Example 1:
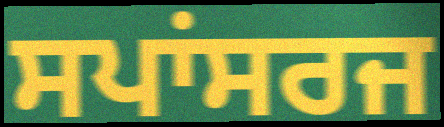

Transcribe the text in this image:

ਸਪਾਂਸਰਜ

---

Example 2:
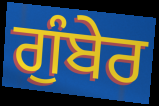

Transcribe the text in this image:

ਗੁੰਬੇਰ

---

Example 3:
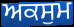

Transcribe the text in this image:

ਅਕਸੁਮ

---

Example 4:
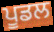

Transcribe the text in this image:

ਪੂਡਲ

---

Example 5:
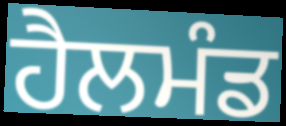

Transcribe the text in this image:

ਹੈਲਮੰਡ